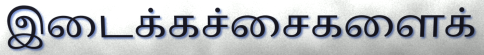
இடைக்கச்சைகளைக்